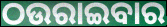
ଠଉରାଇବାର